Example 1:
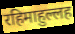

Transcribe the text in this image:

रहिमाहुल्लह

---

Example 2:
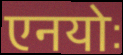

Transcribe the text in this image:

एनयोः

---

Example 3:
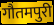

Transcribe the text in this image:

गौतमपुरी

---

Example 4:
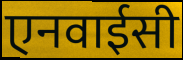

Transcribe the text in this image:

एनवाईसी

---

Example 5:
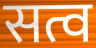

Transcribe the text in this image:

सत्व